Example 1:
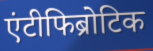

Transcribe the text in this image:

एंटीफिब्रोटिक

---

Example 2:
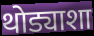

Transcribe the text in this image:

थोड्याशा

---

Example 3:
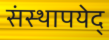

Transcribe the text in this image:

संस्थापयेद्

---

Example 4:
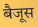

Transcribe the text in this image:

बैजूस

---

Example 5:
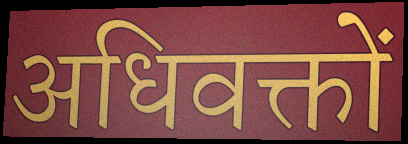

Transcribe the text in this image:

अधिवक्तों